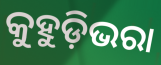
କୁହୁଡ଼ିଭରା